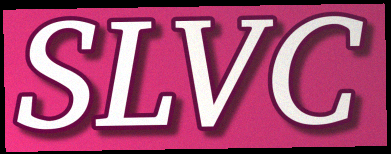
SLVC